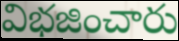
విభజించారు